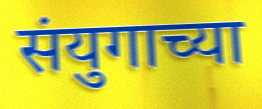
संयुगाच्या